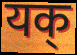
यक्